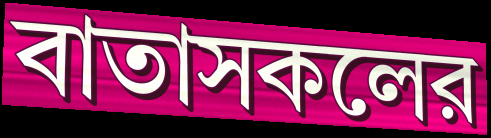
বাতাসকলের